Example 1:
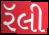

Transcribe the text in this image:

રૅલી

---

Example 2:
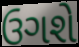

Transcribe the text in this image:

ઉગશે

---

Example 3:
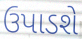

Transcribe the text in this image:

ઉપાડશે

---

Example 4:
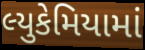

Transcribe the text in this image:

લ્યુકેમિયામાં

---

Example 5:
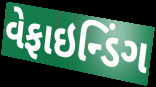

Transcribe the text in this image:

વેફાઇન્ડિંગ